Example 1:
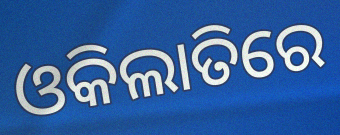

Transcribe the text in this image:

ଓକିଲାତିରେ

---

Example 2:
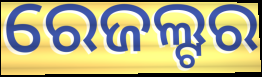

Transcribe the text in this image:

ରେଜଲ୍ଟର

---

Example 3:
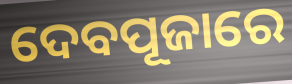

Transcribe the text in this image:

ଦେବପୂଜାରେ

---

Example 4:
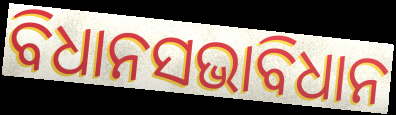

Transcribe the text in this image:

ବିଧାନସଭାବିଧାନ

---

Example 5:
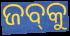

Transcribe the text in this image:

ଜବ୍‍କୁ